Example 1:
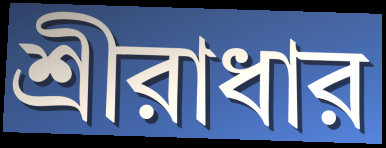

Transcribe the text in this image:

শ্রীরাধার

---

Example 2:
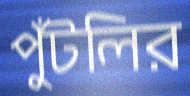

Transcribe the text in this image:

পুঁটলির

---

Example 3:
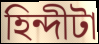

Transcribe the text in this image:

হিন্দীটা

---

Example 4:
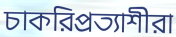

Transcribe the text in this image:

চাকরিপ্রত্যাশীরা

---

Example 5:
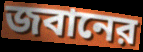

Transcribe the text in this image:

জবানের